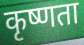
कृष्णता